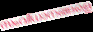
സംവിധാനങ്ങളെ